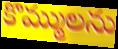
కొమ్ములను